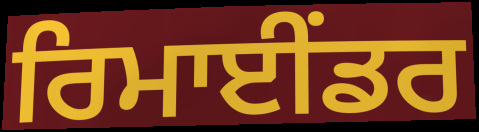
ਰਿਮਾਈਂਡਰ